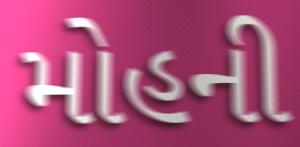
મોહની